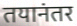
तयानंतर